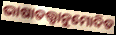
ଭାଷାତତ୍ତ୍ୱାନୁମୋଦିତ